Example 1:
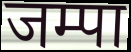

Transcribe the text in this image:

जम्पा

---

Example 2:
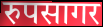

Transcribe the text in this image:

रुपसागर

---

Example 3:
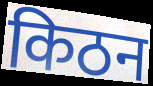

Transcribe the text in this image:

किठन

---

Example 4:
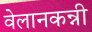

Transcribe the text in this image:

वेलानकन्नी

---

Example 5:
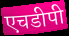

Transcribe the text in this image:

एचडीपी